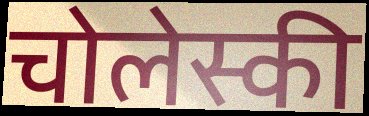
चोलेस्की